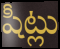
షీట్లు